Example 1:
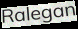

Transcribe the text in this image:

Ralegan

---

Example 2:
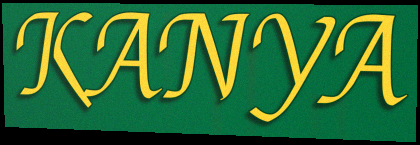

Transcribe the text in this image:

KANYA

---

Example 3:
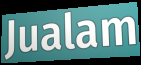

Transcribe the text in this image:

Jualam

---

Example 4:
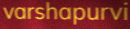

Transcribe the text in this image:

varshapurvi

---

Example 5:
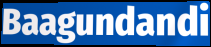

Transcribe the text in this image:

Baagundandi